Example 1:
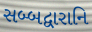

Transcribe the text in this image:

સબ્બદ્વારાનિ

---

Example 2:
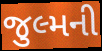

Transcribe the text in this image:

જુલ્મની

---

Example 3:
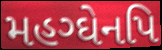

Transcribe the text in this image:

મહગ્ઘેનપિ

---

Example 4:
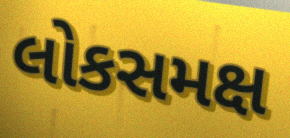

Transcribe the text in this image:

લોકસમક્ષ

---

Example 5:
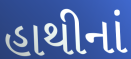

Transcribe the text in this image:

હાથીનાં